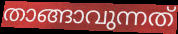
താങ്ങാവുന്നത്